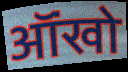
ऑंखो